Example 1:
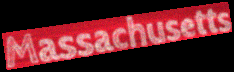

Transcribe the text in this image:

Massachusetts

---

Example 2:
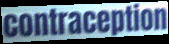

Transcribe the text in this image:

contraception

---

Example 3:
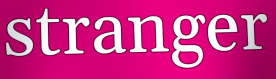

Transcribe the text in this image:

stranger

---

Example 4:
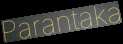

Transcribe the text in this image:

Parantaka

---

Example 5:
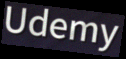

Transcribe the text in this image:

Udemy